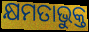
କ୍ଷମତାଭୁକ୍ତ